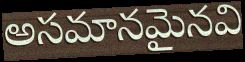
అసమానమైనవి